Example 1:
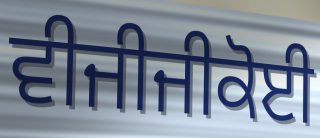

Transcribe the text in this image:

ਵੀਜੀਜੀਕੋਈ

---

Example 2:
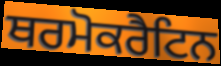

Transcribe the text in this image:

ਥਰਮੋਕਰੈਟਿਨ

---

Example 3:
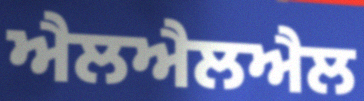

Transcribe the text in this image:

ਐਲਐਲਐਲ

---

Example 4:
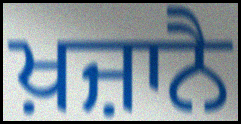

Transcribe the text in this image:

ਖ਼ਜ਼ਾਨੈ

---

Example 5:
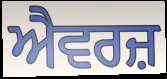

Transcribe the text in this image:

ਐਵਰਜ਼